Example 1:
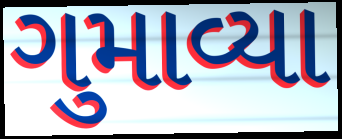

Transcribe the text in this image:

ગુમાવ્યા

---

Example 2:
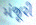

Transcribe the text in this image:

મંજૂરી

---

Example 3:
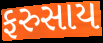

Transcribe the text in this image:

ફરુસાય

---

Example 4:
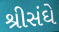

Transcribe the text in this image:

શ્રીસંઘે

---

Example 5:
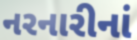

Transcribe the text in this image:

નરનારીનાં